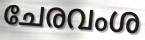
ചേരവംശ